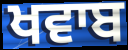
ਖਵਾਬ